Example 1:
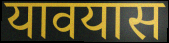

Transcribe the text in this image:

यावयास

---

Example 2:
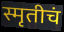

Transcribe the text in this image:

स्मृतीचं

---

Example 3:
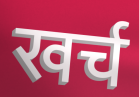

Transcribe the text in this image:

खर्च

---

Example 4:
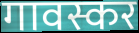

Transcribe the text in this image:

गावस्कर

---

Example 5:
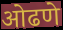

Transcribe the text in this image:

ओढणे